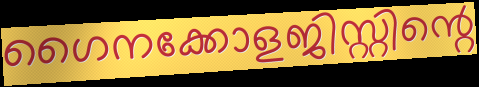
ഗൈനക്കോളജിസ്റ്റിന്റെ